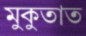
মুকুতাত